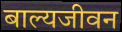
बाल्यजीवन